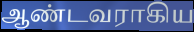
ஆண்டவராகிய